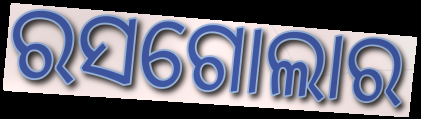
ରସଗୋଲାର